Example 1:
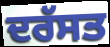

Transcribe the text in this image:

ਦਰੱਸਤ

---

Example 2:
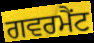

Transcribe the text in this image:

ਗਵਰਮੈਂਟ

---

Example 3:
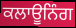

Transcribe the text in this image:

ਕਲਾਊਨਿੰਗ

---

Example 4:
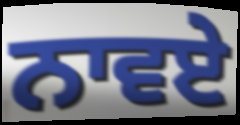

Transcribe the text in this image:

ਨਾਵਏ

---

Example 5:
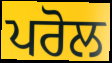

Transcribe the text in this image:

ਪਰੋਲ